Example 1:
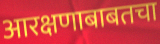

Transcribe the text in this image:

आरक्षणाबाबतचा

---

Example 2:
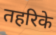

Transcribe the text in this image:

तहरिके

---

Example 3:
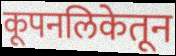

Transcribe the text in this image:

कूपनलिकेतून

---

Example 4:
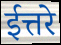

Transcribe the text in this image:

ईत्तरे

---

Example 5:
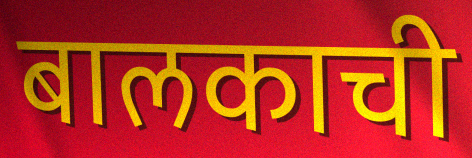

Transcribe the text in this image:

बालकाची